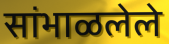
सांभाळलेले